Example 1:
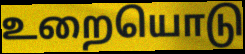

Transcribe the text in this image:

உறையொடு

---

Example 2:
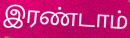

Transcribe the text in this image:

இரண்டாம்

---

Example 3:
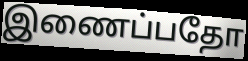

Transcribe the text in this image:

இணைப்பதோ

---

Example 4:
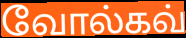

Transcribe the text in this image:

வோல்கவ்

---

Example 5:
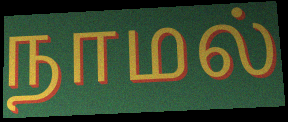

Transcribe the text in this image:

நாமல்